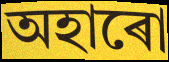
অহাৰো